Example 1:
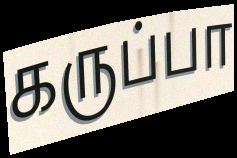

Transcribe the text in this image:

கருப்பா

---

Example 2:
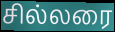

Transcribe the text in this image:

சில்லரை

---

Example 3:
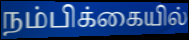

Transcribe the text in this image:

நம்பிக்கையில்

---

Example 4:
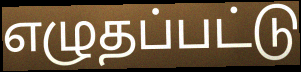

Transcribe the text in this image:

எழுதப்பட்டு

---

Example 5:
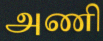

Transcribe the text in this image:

அணி